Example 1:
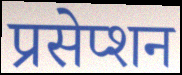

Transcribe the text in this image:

प्रसेप्शन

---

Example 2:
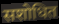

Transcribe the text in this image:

सशोधित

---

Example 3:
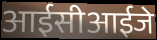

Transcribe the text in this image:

आईसीआईजे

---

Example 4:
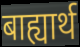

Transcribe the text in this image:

बाह्यार्थ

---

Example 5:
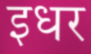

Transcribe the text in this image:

इधर